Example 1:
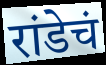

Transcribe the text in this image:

रांडेचं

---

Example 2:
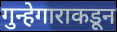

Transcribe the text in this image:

गुन्हेगाराकडून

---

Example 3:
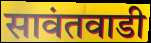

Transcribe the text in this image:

सावंतवाडी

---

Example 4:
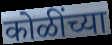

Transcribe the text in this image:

कोळींच्या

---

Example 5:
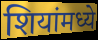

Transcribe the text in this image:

शियांमध्ये